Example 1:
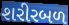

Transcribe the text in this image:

શરીરબળ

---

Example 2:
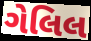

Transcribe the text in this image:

ગેલિલ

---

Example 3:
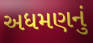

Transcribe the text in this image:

અધમણનું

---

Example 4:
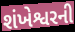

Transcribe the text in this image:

શંખેશ્વરની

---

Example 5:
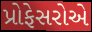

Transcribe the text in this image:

પ્રોફેસરોએ